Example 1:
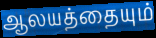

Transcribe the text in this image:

ஆலயத்தையும்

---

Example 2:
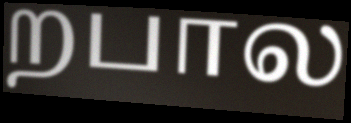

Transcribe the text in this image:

றபால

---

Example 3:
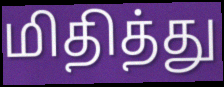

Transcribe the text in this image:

மிதித்து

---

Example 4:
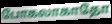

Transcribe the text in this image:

போகலாகாதோ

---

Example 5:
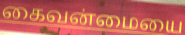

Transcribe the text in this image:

கைவன்மையை